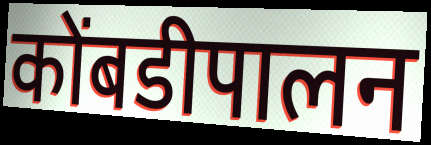
कोंबडीपालन